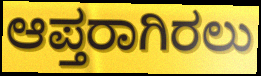
ಆಪ್ತರಾಗಿರಲು